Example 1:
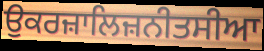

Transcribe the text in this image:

ਉਕਰਜ਼ਾਲਿਜ਼ਨੀਤਸੀਆ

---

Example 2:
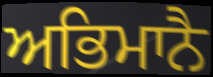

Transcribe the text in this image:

ਅਭਿਮਾਨੈ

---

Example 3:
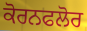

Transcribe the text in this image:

ਕੋਰਨਫਲੋਰ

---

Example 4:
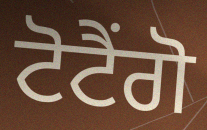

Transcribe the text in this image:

ਟੋਟੈਂਗੋ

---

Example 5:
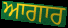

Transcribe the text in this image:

ਆਗਾਰ